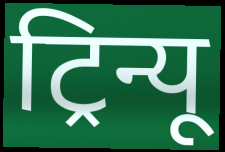
ट्रिन्यू